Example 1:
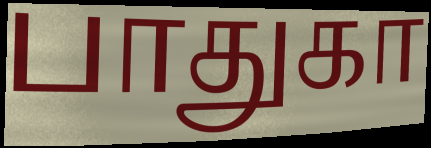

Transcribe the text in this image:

பாதுகா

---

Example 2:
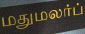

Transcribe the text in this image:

மதுமலர்ப்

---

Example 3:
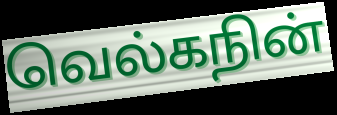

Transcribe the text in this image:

வெல்கநின்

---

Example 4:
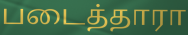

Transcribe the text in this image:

படைத்தாரா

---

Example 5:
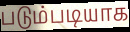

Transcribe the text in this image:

படும்படியாக